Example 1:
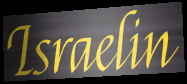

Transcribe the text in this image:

Israelin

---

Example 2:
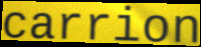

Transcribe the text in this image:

carrion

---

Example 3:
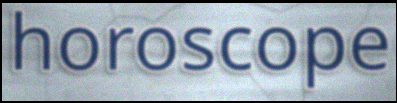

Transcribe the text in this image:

horoscope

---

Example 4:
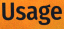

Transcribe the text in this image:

Usage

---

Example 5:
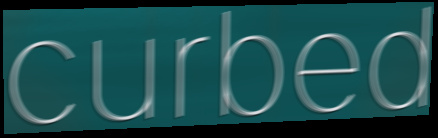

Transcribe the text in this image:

curbed